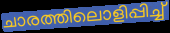
ചാരത്തിലൊളിപ്പിച്ച്